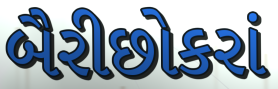
બૈરીછોકરાં